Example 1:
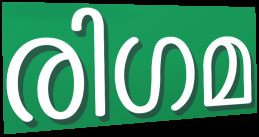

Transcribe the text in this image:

രിഗമ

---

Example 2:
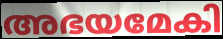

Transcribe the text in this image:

അഭയമേകി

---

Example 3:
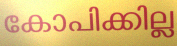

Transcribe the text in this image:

കോപിക്കില്ല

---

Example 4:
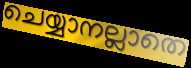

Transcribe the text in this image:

ചെയ്യാനല്ലാതെ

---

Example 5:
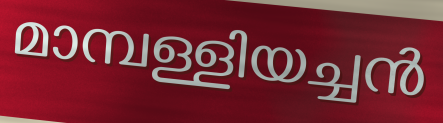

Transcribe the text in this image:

മാമ്പള്ളിയച്ചൻ